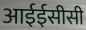
आईईसीसी